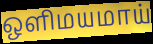
ஒளிமயமாய்